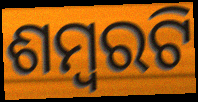
ଶମ୍ବରଟି